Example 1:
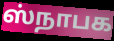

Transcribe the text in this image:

ஸ்நாபக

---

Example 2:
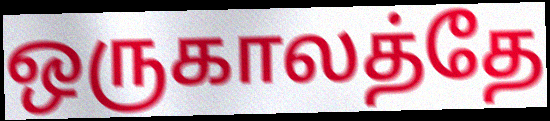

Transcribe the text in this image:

ஒருகாலத்தே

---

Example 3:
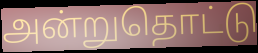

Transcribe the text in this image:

அன்றுதொட்டு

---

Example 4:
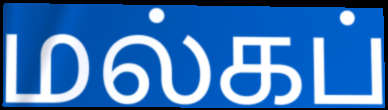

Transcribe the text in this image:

மல்கப்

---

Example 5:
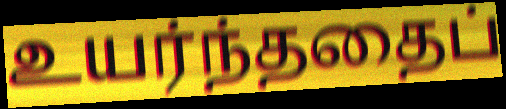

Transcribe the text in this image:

உயர்ந்ததைப்